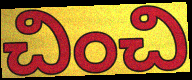
చించి